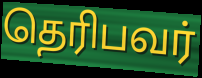
தெரிபவர்